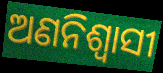
ଅଣନିଶ୍ୱାସୀ